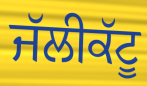
ਜੱਲੀਕੱਟੂ